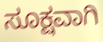
ಸೂಕ್ಷವಾಗಿ